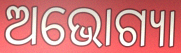
ଅଭୋଗ୍ୟା